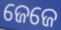
ଜେଜେ